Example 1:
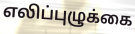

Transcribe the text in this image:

எலிப்புழுக்கை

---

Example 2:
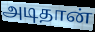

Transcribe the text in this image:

அடிதான்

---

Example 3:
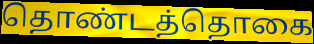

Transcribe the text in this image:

தொண்டத்தொகை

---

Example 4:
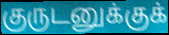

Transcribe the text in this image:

குருடனுக்குக்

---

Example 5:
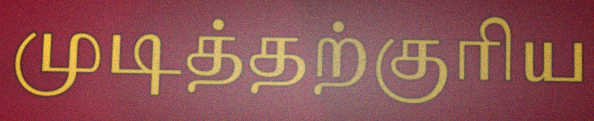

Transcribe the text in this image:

முடித்தற்குரிய